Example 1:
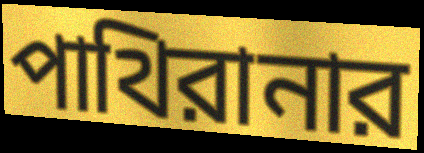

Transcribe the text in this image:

পাথিরানার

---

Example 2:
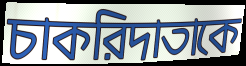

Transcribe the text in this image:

চাকরিদাতাকে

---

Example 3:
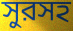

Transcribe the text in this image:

সুরসহ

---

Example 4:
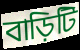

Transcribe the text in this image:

বাড়িটি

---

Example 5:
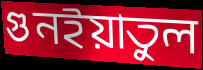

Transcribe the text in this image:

গুনইয়াতুল